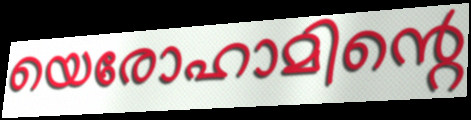
യെരോഹാമിന്റെ